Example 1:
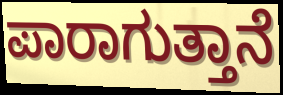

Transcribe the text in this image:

ಪಾರಾಗುತ್ತಾನೆ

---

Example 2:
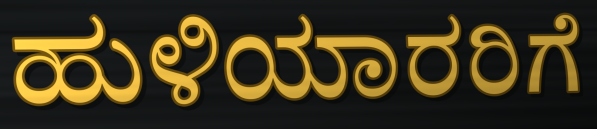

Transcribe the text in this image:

ಹುಳಿಯಾರರಿಗೆ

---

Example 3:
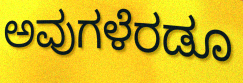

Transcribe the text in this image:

ಅವುಗಳೆರಡೂ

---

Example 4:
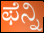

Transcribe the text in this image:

ಫೆನ್ನಿ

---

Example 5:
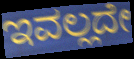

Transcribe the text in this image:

ಇವಲ್ಲದೇ